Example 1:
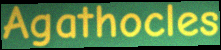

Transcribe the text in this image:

Agathocles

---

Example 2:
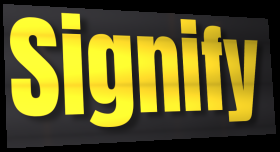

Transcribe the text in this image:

Signify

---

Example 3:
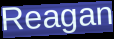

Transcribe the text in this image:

Reagan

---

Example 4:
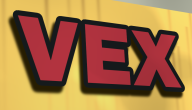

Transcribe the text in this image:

VEX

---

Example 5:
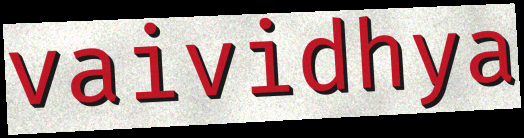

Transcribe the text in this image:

vaividhya